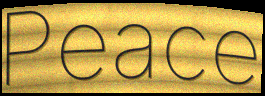
Peace